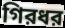
গিরধর